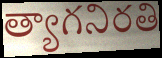
త్యాగనిరతి